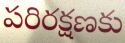
పరిరక్షణకు